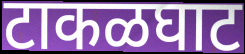
टाकळघाट